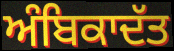
ਅੰਬਿਕਾਦੱਤ